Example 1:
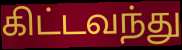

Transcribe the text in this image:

கிட்டவந்து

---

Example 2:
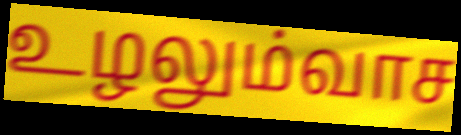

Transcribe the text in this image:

உழலும்வாச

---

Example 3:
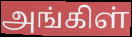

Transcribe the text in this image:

அங்கிள்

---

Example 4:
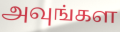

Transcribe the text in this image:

அவுங்கள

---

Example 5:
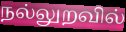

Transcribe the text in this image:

நல்லுறவில்